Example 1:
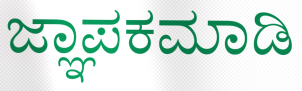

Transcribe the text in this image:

ಜ್ಞಾಪಕಮಾಡಿ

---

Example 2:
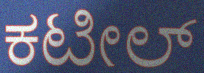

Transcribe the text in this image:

ಕಟೀಲ್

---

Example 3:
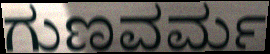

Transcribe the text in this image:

ಗುಣವರ್ಮ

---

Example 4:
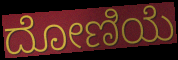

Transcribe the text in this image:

ದೋಣಿಯೆ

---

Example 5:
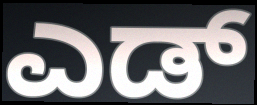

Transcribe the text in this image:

ಎಡ್